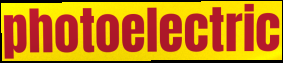
photoelectric